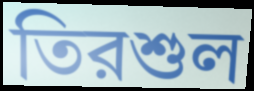
তিরশুল